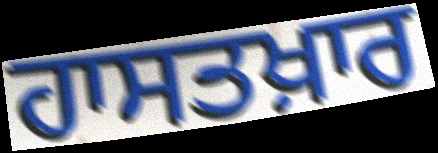
ਹਾਸਤਖ਼ਾਰ